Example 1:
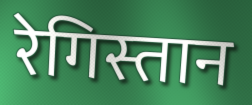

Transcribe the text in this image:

रेगिस्‍तान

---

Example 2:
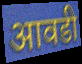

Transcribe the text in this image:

आवडी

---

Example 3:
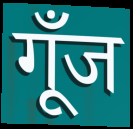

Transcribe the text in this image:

गूँज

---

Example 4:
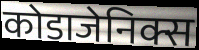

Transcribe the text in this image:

कोडाजेनिक्स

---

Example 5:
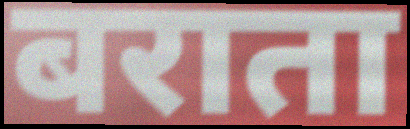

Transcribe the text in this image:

बराता